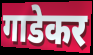
गाडेकर